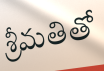
శ్రీమతితో